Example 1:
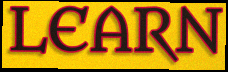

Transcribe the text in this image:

LEARN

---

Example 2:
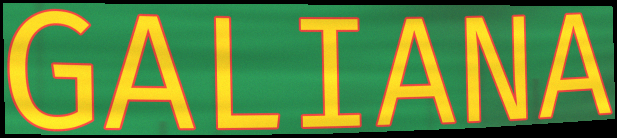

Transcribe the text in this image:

GALIANA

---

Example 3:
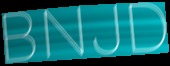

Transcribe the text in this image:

BNJD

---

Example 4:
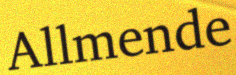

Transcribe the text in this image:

Allmende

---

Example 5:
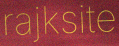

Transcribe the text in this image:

rajksite